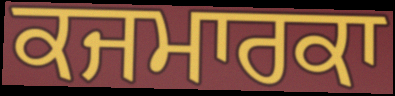
ਕਜਮਾਰਕਾ